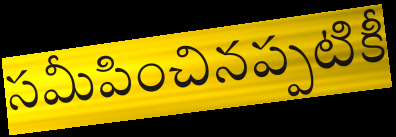
సమీపించినప్పటికీ